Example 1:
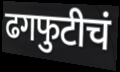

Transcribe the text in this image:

ढगफुटीचं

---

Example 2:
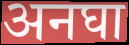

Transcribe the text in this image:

अनघा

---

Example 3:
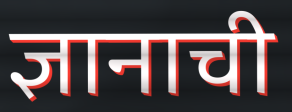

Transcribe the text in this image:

ज्ञानाची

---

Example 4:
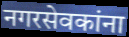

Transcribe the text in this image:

नगरसेवकांना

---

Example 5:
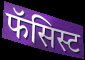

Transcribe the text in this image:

फॅसिस्ट